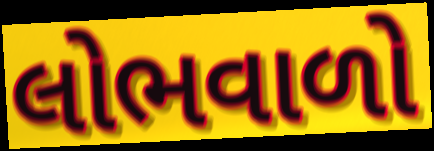
લોભવાળો